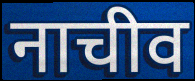
नाचीव